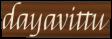
dayavittu